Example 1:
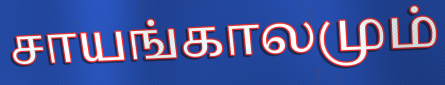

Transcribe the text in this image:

சாயங்காலமும்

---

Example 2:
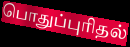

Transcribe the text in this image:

பொதுப்புரிதல்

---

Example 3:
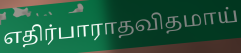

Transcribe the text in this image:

எதிர்பாராதவிதமாய்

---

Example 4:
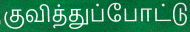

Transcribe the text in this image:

குவித்துப்போட்டு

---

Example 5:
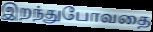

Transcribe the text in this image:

இறந்துபோவதை